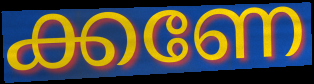
ക്കണേ